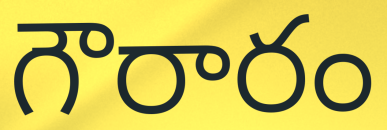
గౌరారం